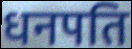
धनपति